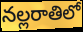
నల్లరాతిలో